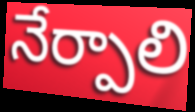
నేర్పాలి